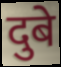
दुबे